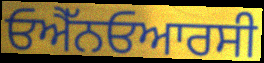
ਓਐੱਨਓਆਰਸੀ